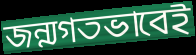
জন্মগতভাবেই